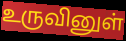
உருவினுள்